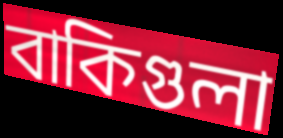
বাকিগুলা